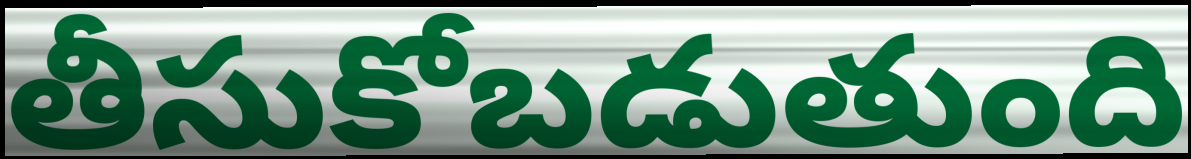
తీసుకోబడుతుంది